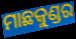
ମାଛକୁଣ୍ଡର